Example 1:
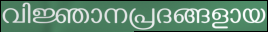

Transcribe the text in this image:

വിജ്ഞാനപ്രദങ്ങളായ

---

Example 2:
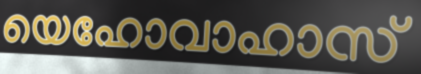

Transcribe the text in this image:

യെഹോവാഹാസ്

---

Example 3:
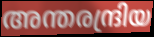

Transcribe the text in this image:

അന്തരന്ദ്രിയ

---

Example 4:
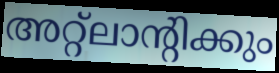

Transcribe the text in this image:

അറ്റ്ലാന്റിക്കും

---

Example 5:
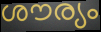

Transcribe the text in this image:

ശൗര്യം